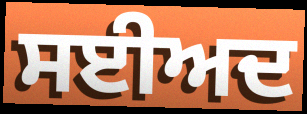
ਸਈਅਦ